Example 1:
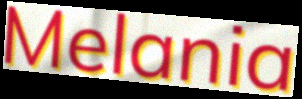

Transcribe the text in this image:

Melania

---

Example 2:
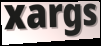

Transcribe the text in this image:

xargs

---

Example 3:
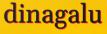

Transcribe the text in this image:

dinagalu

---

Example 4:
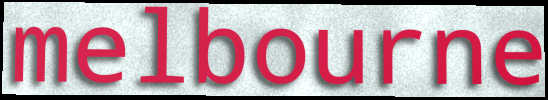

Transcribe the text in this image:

melbourne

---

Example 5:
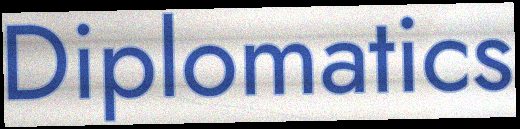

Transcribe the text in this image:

Diplomatics